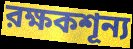
রক্ষকশূন্য